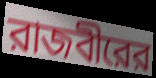
রাজবীরের